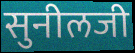
सुनीलजी